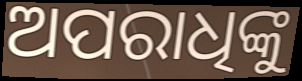
ଅପରାଧିଙ୍କୁ